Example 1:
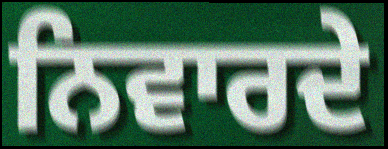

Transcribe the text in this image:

ਨਿਵਾਰਦੇ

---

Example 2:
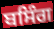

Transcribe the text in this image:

ਬਸਿੰਗ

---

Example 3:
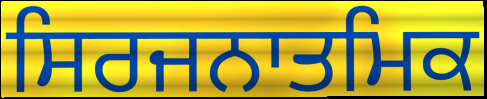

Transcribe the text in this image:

ਸਿਰਜਨਾਤਮਿਕ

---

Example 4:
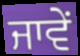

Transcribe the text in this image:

ਜਾਵੇਂ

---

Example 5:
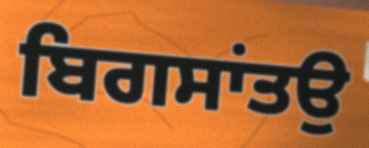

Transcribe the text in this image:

ਬਿਗਸਾਂਤਉ